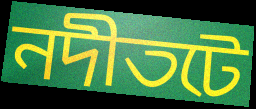
নদীতটে